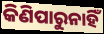
କିଣିପାରୁନାହିଁ